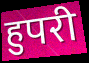
हुपरी